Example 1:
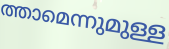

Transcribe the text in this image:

ത്താമെന്നുമുള്ള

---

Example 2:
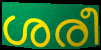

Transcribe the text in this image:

ശരീ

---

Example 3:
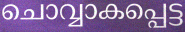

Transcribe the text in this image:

ചൊവ്വാകപ്പെട്ട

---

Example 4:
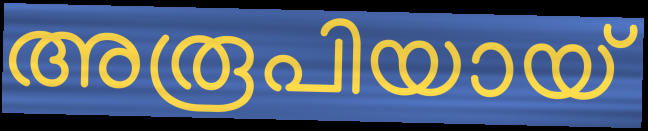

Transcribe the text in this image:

അരൂപിയായ്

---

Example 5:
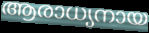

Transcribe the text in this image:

ആരാധ്യനായ